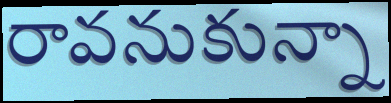
రావనుకున్నా